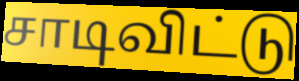
சாடிவிட்டு